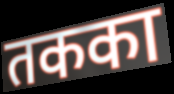
तकका